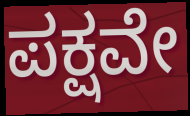
ಪಕ್ಷವೇ